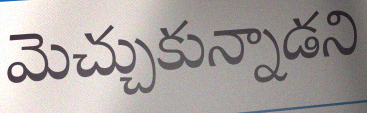
మెచ్చుకున్నాడని